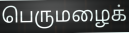
பெருமழைக்